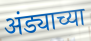
अंड्याच्या